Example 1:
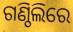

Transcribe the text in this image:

ଗଣ୍ଠିଲିରେ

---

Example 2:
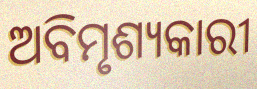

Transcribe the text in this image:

ଅବିମୃଶ୍ୟକାରୀ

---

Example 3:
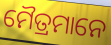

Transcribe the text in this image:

ମୈତ୍ରମାନେ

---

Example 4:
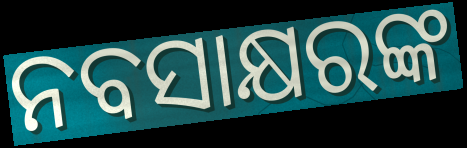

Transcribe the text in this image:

ନବସାକ୍ଷରଙ୍କ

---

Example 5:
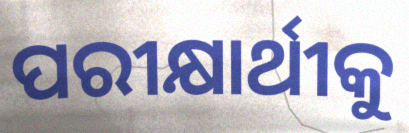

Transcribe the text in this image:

ପରୀକ୍ଷାର୍ଥୀକୁ